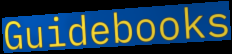
Guidebooks